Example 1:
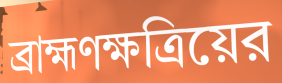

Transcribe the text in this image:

ব্রাহ্মণক্ষত্রিয়ের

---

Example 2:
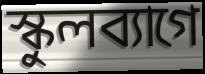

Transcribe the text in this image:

স্কুলব্যাগে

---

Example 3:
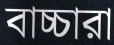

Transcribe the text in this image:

বাচ্চারা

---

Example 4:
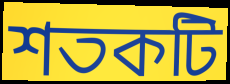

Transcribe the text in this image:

শতকটি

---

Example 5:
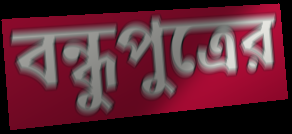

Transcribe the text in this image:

বন্ধুপুত্রের